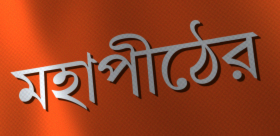
মহাপীঠের